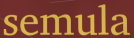
semula